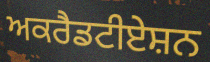
ਅਕਰੈਡਟੀਏਸ਼ਨ